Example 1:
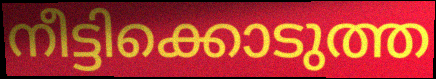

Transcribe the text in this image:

നീട്ടിക്കൊടുത്ത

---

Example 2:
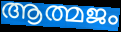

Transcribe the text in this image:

ആത്മജം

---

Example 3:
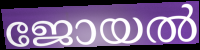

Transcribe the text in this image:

ജോയൽ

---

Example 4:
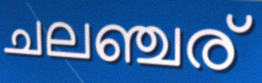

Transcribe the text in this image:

ചലഞ്ചര്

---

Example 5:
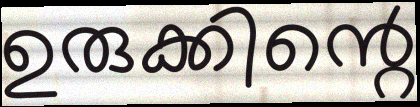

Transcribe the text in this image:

ഉരുക്കിന്റെ